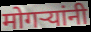
मोगऱ्यांनी